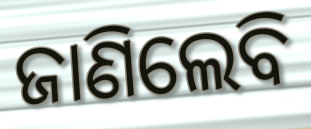
ଜାଣିଲେବି